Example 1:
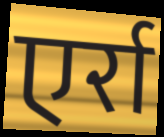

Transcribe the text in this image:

एर्रा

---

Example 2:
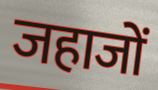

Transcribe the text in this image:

जहाजों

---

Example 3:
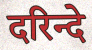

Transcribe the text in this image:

दरिन्दे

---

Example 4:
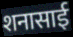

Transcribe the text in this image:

शनासाई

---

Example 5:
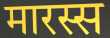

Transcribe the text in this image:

मारस्स